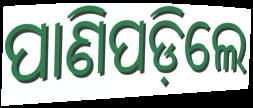
ପାଣିପଡ଼ିଲେ